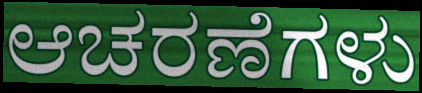
ಆಚರಣೆಗಳು